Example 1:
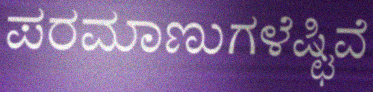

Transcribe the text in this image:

ಪರಮಾಣುಗಳೆಷ್ಟಿವೆ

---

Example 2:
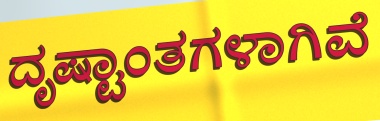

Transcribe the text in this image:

ದೃಷ್ಟಾಂತಗಳಾಗಿವೆ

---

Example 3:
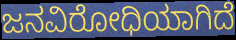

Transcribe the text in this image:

ಜನವಿರೋಧಿಯಾಗಿದೆ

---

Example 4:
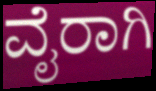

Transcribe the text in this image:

ವೈರಾಗಿ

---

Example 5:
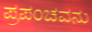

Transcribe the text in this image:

ಪ್ರಪಂಚವನು